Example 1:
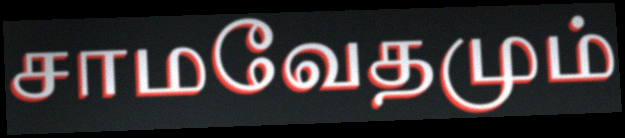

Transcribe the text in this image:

சாமவேதமும்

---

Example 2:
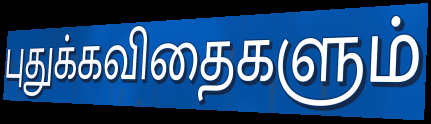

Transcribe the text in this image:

புதுக்கவிதைகளும்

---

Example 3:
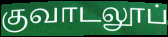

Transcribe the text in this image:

குவாடலூப்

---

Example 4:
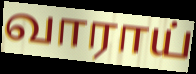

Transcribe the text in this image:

வாராய்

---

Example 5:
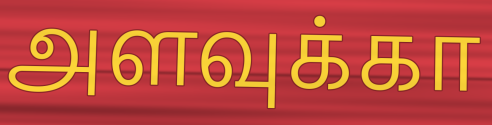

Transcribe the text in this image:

அளவுக்கா